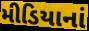
મીડિયાનાં